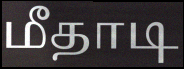
மீதாடி